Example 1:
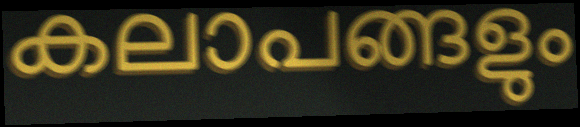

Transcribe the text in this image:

കലാപങ്ങളും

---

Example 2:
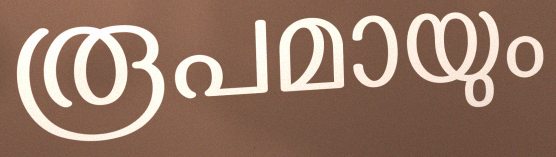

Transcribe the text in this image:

രൂപമായും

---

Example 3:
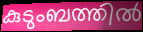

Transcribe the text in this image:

കുടുംബത്തിൽ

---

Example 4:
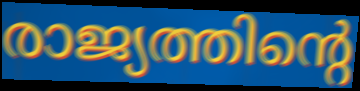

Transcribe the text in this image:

രാജ്യത്തിന്റെ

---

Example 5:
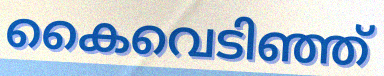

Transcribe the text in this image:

കൈവെടിഞ്ഞ്